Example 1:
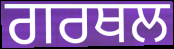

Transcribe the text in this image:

ਗਰਥਲ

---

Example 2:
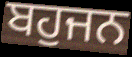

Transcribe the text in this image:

ਬਹੁਜਨ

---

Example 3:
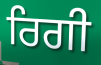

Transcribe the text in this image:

ਰਿਗੀ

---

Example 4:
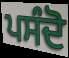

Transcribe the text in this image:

ਪਸੰਦੋ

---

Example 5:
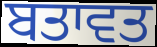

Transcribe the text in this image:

ਬਤਾਵਤ